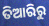
ତିଆରିରୁ